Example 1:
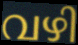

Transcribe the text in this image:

വഴി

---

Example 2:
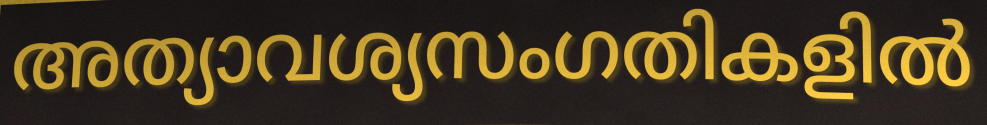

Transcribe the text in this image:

അത്യാവശ്യസംഗതികളിൽ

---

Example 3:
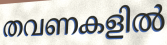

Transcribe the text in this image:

തവണകളിൽ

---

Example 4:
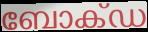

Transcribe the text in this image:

ബോക്ഡ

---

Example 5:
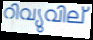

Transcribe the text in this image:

റിവ്യുവില്